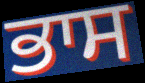
ਭਾਸ